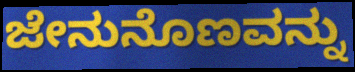
ಜೇನುನೊಣವನ್ನು